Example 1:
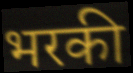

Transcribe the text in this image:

भरकी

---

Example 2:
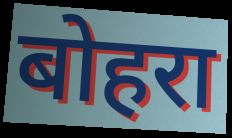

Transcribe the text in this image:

बोहरा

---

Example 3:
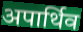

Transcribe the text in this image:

अपार्थिव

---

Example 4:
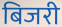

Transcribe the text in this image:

बिजरी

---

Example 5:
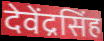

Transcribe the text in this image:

देवेंद्रसिंह